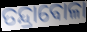
ତନ୍ଦ୍ରାବୋଳା